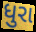
ધુરા